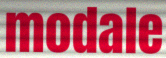
modale